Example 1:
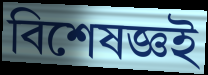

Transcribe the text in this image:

বিশেষজ্ঞই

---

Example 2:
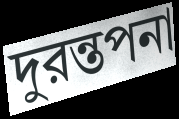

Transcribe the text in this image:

দুরন্তপনা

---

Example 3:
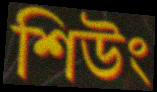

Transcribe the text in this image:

শিউং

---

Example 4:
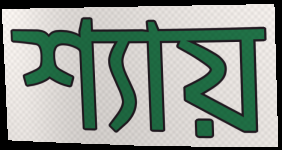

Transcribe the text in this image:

শ্যায়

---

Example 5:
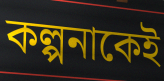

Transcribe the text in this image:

কল্পনাকেই